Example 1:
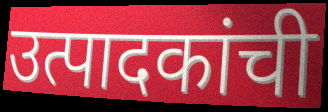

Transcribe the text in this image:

उत्पादकांची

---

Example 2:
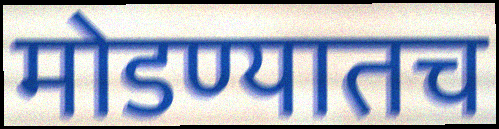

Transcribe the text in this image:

मोडण्यातच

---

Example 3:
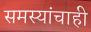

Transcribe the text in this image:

समस्यांचाही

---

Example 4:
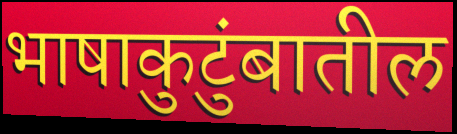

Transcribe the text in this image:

भाषाकुटुंबातील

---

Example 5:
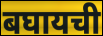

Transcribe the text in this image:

बघायची